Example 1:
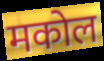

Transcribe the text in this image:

मकोल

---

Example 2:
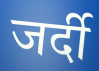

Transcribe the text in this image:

जर्दी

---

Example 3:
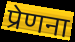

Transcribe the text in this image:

प्रेणना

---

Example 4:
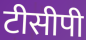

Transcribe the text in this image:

टीसीपी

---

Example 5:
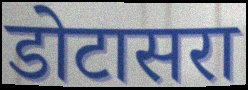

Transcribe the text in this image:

डोटासरा